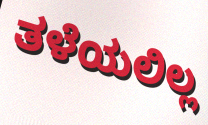
ತಳೆಯಲಿಲ್ಲ